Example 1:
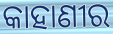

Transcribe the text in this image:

କାହାଣୀର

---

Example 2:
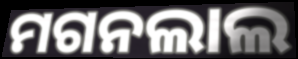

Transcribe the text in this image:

ମଗନଲାଲ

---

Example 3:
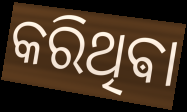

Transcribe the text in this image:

କରିଥିଵା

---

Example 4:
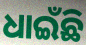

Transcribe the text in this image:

ଧାଇଁଛି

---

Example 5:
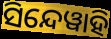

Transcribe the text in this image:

ସିନ୍ଦେୱାହି